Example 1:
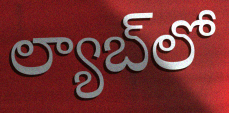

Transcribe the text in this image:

ల్యాబ్‌లో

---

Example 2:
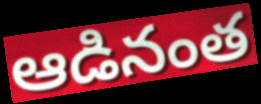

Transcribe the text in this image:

ఆడినంత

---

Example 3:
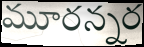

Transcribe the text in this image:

మూరన్నర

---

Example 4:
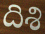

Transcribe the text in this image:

దిశి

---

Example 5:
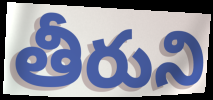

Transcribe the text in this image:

తీరుని